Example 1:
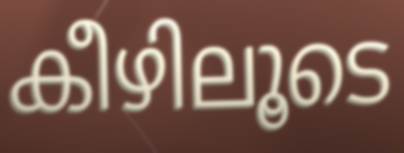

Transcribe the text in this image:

കീഴിലൂടെ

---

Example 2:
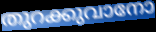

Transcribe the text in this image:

തുറക്കുവാനോ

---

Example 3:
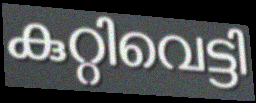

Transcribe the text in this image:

കുറ്റിവെട്ടി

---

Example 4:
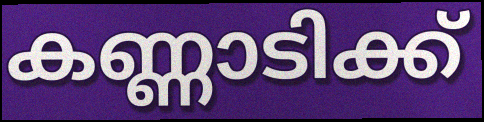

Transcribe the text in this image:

കണ്ണാടിക്ക്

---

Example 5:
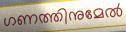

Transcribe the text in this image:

ഗണത്തിനുമേൽ